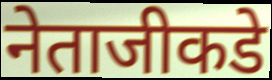
नेताजीकडे